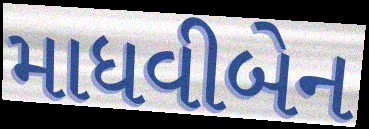
માધવીબેન